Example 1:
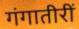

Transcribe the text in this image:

गंगातीरीं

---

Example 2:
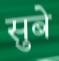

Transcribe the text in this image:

सुबे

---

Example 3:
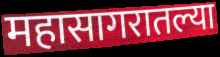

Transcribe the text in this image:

महासागरातल्या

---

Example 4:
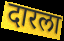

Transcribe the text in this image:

दारला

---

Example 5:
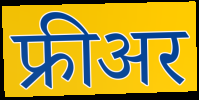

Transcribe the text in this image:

फ्रीअर